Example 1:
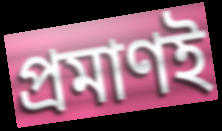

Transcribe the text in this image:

প্রমাণই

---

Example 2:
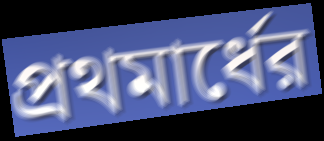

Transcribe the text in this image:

প্রথমার্ধের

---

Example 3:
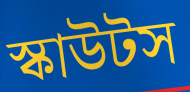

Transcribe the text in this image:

স্কাউটস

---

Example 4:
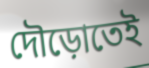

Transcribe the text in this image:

দৌড়োতেই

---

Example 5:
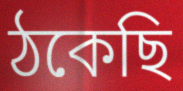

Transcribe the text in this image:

ঠকেছি